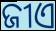
ଜୀଏ